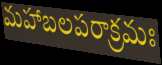
మహాబలపరాక్రమః